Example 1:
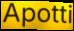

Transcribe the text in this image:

Apotti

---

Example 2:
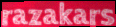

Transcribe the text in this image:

razakars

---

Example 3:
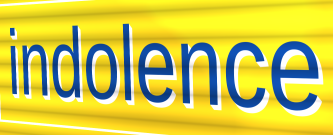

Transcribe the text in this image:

indolence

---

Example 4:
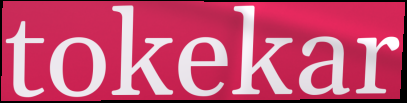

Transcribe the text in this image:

tokekar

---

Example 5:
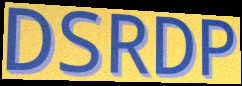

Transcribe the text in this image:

DSRDP